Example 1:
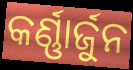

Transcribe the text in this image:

କର୍ଣ୍ଣାର୍ଜୁନ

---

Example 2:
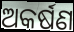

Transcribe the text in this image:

ଅକର୍ଷଣ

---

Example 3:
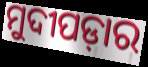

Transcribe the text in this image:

ମୁଦୀପଡ଼ାର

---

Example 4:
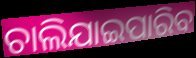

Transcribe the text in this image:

ଚାଲିଯାଇପାରିବ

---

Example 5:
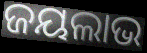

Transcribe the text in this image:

ଜୟଲାଭ